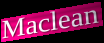
Maclean